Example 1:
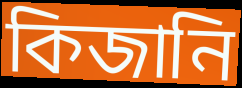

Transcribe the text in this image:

কিজানি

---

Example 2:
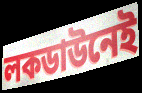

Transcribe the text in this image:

লকডাউনেই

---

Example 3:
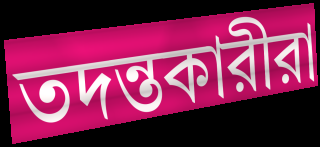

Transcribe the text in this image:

তদন্তকারীরা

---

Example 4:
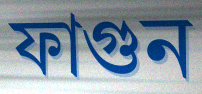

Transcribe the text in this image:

ফাগুন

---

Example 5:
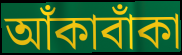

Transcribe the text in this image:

আঁকাবাঁকা